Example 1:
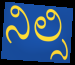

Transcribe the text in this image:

ನಿಲ್ಸಿ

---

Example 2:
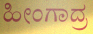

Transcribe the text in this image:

ಹೀಂಗಾದ್ರ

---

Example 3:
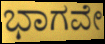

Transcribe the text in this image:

ಭಾಗವೇ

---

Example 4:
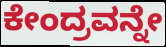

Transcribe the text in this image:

ಕೇಂದ್ರವನ್ನೇ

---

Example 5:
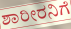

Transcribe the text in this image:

ಶಾರೀರನಿಗೆ